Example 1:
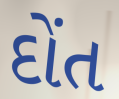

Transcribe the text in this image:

દોંત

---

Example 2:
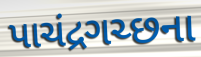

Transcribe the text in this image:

પાચંદ્રગચ્છના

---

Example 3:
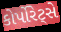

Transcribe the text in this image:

કોર્પોરેટ્સે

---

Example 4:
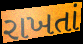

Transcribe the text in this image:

રાખતાં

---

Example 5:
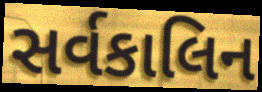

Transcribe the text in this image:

સર્વકાલિન